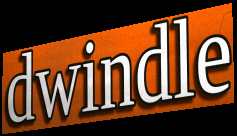
dwindle